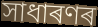
সাধাৰণৰ